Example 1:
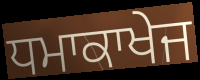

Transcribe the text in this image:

ਧਮਾਕਾਖੇਜ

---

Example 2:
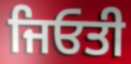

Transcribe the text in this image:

ਜਿਓਤੀ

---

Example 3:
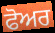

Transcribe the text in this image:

ਫੋਅਰ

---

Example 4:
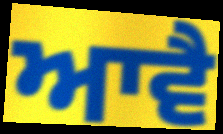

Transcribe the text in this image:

ਆਵੈ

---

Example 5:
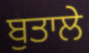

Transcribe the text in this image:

ਬੁਤਾਲੇ